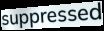
suppressed